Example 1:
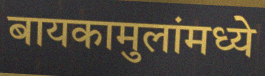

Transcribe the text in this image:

बायकामुलांमध्ये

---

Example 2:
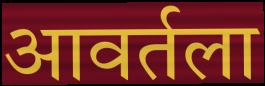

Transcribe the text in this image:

आवर्तला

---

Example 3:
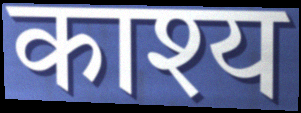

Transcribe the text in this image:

काश्य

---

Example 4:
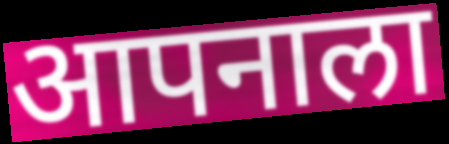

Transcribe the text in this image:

आपनाला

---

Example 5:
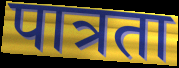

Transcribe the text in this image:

पात्रता